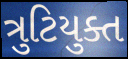
ત્રુટિયુક્ત